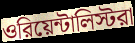
ওরিয়েন্টালিস্টরা